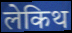
लेकिथ